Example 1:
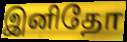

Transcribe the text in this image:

இனிதோ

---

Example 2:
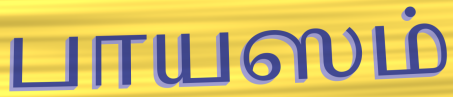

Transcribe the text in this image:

பாயஸம்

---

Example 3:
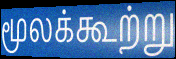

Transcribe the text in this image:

மூலக்கூற்று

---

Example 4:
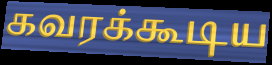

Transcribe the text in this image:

கவரக்கூடிய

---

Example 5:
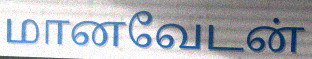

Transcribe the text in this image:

மானவேடன்